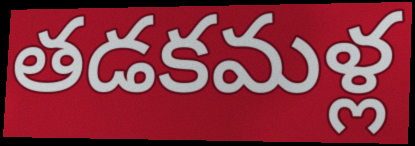
తడకమళ్ల